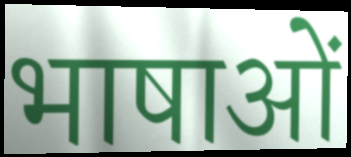
भाषाओें